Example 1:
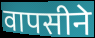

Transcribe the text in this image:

वापसीने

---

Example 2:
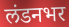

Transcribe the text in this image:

लंडनभर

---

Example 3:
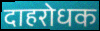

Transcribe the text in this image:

दाहरोधक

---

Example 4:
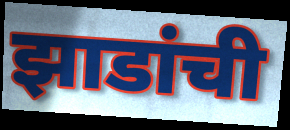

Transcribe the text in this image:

झाडांची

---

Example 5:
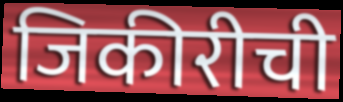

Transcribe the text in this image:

जिकीरीची